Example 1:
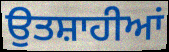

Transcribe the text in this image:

ਉਤਸ਼ਾਹੀਆਂ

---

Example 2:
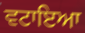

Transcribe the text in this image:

ਵਟਾਇਆ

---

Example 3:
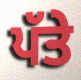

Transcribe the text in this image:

ਪੱਤੇ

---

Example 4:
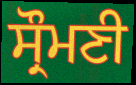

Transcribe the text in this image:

ਸ੍ਰੌਮਣੀ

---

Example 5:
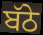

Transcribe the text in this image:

ਬੱਠੇ